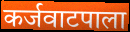
कर्जवाटपाला